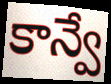
కాన్వే